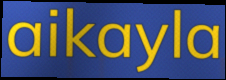
aikayla